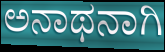
ಅನಾಥನಾಗಿ